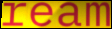
ream